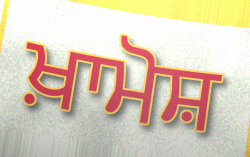
ਖ਼ਾਮੋਸ਼